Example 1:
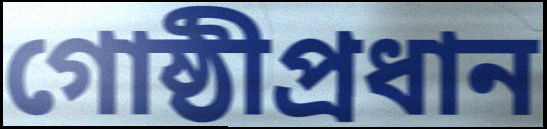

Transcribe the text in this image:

গোষ্ঠীপ্রধান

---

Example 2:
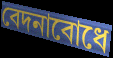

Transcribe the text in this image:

বেদনাবোধে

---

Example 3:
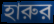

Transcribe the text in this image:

হারুর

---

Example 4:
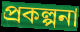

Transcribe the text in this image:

প্রকল্পনা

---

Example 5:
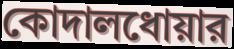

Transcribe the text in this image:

কোদালধোয়ার